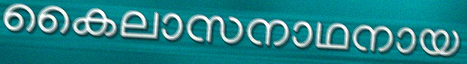
കൈലാസനാഥനായ